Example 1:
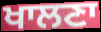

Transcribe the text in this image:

ਖਾਲਣਾ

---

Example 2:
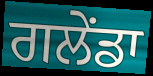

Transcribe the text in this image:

ਗਲੇਂਡਾ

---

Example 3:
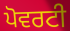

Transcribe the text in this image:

ਪੋਵਰਟੀ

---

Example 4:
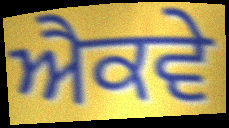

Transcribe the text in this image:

ਐਕਵੇ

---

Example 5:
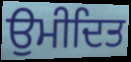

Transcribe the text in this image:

ਉਮੀਦਿਤ